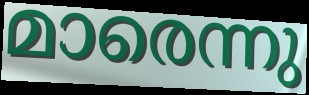
മാരെന്നു